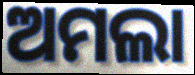
ଅମଲା